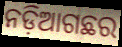
ନଡ଼ିଆଗଛର